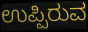
ಉಪ್ಪಿರುವ